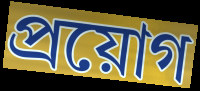
প্রয়োগ